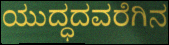
ಯುದ್ಧದವರೆಗಿನ